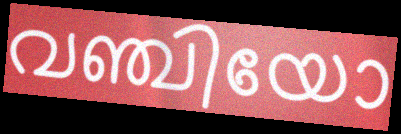
വഞ്ചിയോ